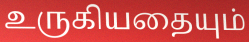
உருகியதையும்